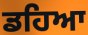
ਡਹਿਆ